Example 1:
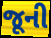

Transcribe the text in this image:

જૂની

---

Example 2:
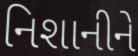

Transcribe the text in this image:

નિશાનીને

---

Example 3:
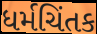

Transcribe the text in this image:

ધર્મચિંતક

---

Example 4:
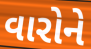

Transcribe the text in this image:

વારોને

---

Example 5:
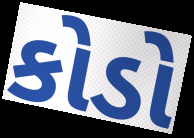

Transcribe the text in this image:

કોડો